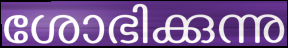
ശോഭിക്കുന്നു